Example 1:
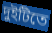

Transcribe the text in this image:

দুইটিতে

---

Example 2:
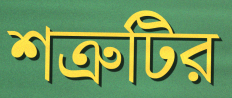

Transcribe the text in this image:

শত্রুটির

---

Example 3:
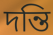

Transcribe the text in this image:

দন্তি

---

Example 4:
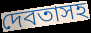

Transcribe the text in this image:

দেবতাসহ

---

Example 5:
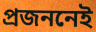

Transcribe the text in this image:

প্রজননেই